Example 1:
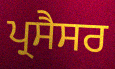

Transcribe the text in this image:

ਪ੍ਰਸੈਸਰ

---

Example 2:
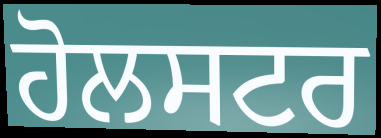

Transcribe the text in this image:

ਹੋਲਸਟਰ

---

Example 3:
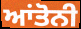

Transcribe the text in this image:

ਆਂਤੋਨੀ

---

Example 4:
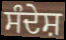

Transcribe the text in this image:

ਸੰਦੇਸ਼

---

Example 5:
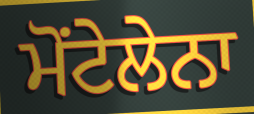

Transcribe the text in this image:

ਮੋਂਟੇਲੇਨਾ